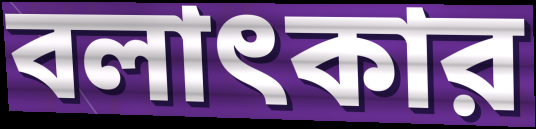
বলাৎকার